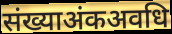
संख्याअंकअवधि